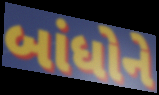
બાંધોને